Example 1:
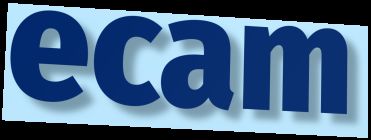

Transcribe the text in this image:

ecam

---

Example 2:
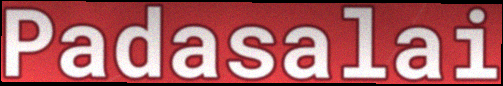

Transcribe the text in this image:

Padasalai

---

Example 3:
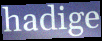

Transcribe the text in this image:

hadige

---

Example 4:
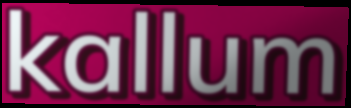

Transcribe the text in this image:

kallum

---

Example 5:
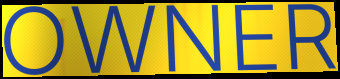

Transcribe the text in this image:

OWNER